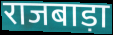
राजबाड़ा